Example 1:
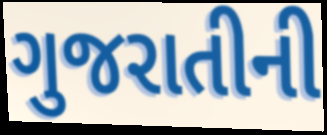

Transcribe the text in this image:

ગુજરાતીની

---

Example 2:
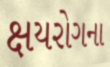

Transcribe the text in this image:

ક્ષયરોગના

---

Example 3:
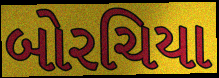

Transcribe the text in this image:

બોરચિયા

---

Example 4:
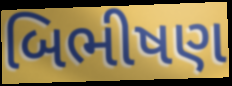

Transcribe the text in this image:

બિભીષણ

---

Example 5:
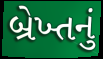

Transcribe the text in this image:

બ્રેખ્તનું